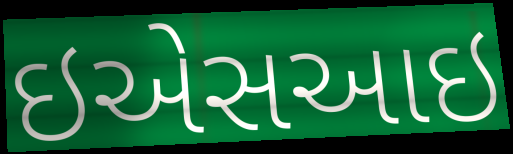
ઇએસઆઇ